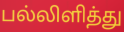
பல்லிளித்து